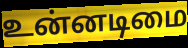
உன்னடிமை